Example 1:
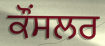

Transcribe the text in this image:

ਕੌੰਸਲਰ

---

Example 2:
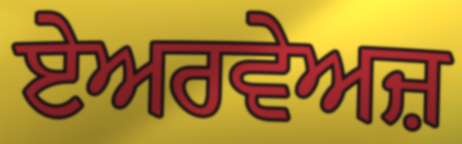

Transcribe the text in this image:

ਏਅਰਵੇਅਜ਼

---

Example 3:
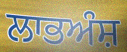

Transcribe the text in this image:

ਲਾਭਅੰਸ਼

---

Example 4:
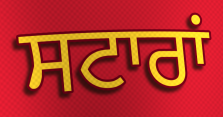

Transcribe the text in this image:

ਸਟਾਰਾਂ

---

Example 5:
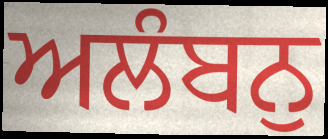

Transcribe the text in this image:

ਅਲੰਬਨੁ